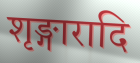
शृङ्गारादि